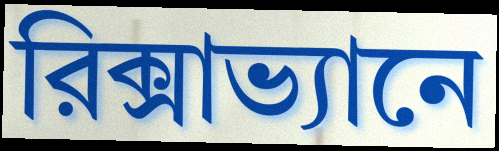
রিক্সাভ্যানে